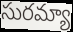
సురమ్యా